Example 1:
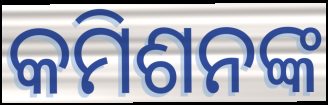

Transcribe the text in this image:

କମିଶନଙ୍କ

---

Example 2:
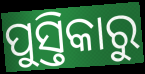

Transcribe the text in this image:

ପୁସ୍ତିକାରୁ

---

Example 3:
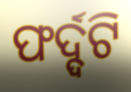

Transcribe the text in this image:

ଫର୍ଦ୍ଦଟି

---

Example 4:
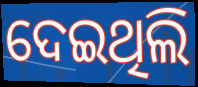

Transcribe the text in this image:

ଦେଇଥିଲି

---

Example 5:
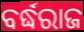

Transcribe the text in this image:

ବର୍ଦ୍ଧରାଜ